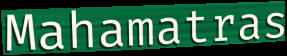
Mahamatras